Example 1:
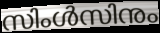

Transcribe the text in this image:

സിംൾസിനും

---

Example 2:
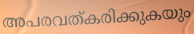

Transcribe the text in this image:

അപരവത്കരിക്കുകയും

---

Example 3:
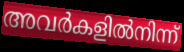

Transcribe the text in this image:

അവർകളിൽനിന്ന്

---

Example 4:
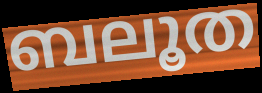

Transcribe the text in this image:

ബലൂത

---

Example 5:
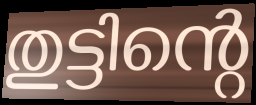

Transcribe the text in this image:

തുട്ടിന്റെ